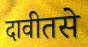
दावीतसे